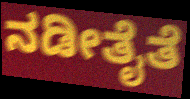
ನಡೀತೈತೆ